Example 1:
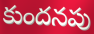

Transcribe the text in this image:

కుందనపు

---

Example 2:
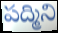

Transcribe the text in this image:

పద్మిని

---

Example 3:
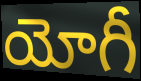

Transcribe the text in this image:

యోగీ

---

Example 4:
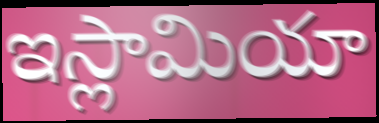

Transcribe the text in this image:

ఇస్లామియా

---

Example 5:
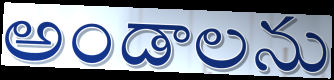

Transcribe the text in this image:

అండాలను